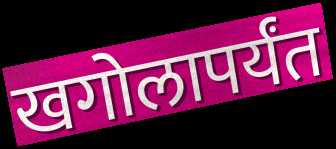
खगोलापर्यंत